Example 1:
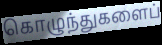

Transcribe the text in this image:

கொழுந்துகளைப்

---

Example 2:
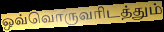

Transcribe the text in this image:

ஒவ்வொருவரிடத்தும்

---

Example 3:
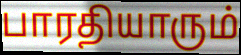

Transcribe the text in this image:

பாரதியாரும்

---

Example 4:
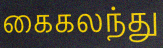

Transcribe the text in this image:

கைகலந்து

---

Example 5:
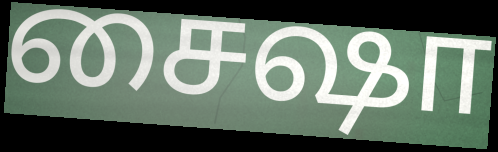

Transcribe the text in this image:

சைஷா